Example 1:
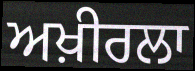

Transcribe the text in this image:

ਅਖ਼ੀਰਲਾ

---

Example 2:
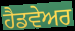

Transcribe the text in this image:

ਹੈਡਵੇਅਰ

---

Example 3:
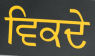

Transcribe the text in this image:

ਵਿਕਦੇ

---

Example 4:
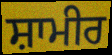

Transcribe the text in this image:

ਸ਼ਾਮੀਰ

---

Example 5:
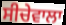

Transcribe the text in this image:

ਸੀਚੇਵਾਲਾ